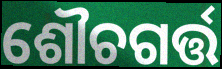
ଶୌଚଗର୍ତ୍ତ